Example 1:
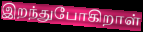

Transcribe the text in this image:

இறந்துபோகிறாள்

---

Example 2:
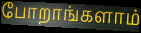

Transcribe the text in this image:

போறாங்களாம்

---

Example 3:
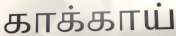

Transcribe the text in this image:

காக்காய்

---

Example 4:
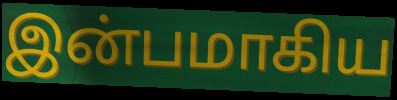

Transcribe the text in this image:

இன்பமாகிய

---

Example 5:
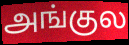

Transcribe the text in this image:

அங்குல